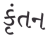
કૃંતન